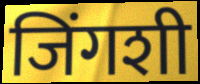
जिंगशी